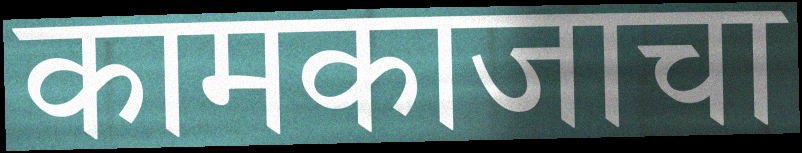
कामकाजाचा